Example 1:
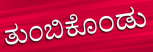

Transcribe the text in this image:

ತುಂಬಿಕೊಂಡು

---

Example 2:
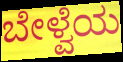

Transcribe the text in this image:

ಬೇಳ್ವೆಯ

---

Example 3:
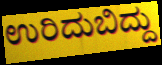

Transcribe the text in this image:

ಉರಿದುಬಿದ್ದು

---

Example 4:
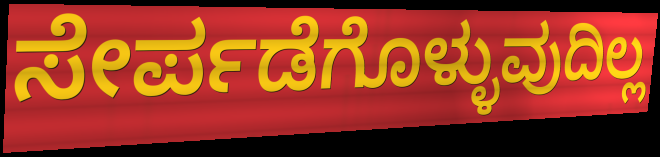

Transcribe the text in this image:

ಸೇರ್ಪಡೆಗೊಳ್ಳುವುದಿಲ್ಲ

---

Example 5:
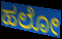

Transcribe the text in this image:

ಹಲೋ